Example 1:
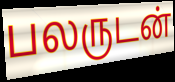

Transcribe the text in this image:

பலருடன்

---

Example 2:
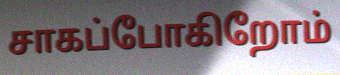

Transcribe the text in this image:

சாகப்போகிறோம்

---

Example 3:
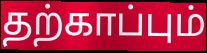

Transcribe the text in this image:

தற்காப்பும்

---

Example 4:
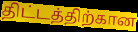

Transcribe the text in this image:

திட்டத்திற்கான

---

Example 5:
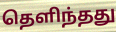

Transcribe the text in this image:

தெளிந்தது